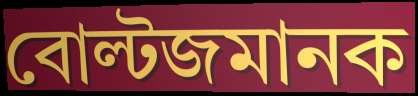
বোল্টজমানক